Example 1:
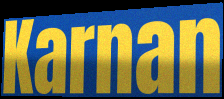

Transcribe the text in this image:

Karnan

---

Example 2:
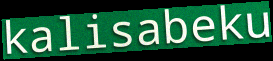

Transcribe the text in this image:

kalisabeku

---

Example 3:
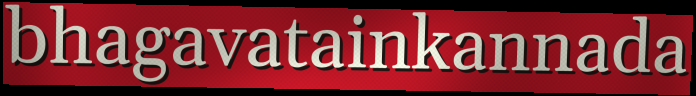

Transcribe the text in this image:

bhagavatainkannada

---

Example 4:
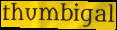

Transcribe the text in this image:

thumbigal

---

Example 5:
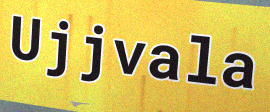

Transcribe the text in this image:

Ujjvala